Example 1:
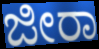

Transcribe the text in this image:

ಜೀರಾ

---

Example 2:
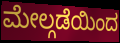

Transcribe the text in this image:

ಮೇಲ್ಗಡೆಯಿಂದ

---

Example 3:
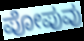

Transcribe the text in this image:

ಪೋಪುವು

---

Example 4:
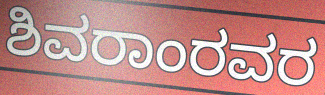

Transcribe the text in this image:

ಶಿವರಾಂರವರ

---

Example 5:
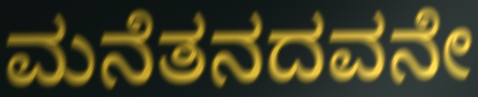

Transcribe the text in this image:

ಮನೆತನದವನೇ